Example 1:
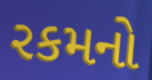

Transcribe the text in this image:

રકમનો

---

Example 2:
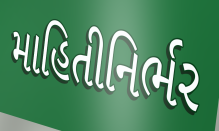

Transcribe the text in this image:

માહિતીનિર્ભર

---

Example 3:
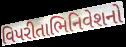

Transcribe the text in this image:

વિપરીતાભિનિવેશનો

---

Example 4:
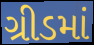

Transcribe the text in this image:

ગ્રીડમાં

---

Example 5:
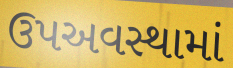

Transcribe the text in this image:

ઉપઅવસ્થામાં